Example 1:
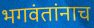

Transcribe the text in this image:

भगवंतांनाच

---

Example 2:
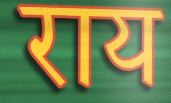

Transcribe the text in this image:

राय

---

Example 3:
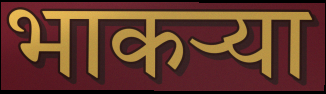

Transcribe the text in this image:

भाकर्‍या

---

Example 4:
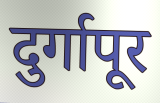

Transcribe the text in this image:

दुर्गापूर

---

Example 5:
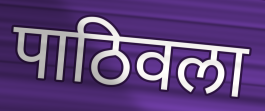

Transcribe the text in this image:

पाठिवला